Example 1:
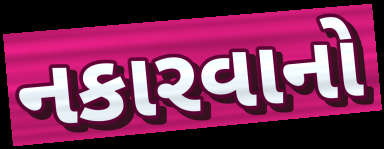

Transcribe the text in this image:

નકારવાનો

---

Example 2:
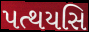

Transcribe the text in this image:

પત્થયસિ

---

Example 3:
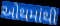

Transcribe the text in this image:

ઓથમાંથી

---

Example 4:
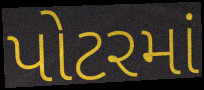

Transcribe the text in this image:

પોટરમાં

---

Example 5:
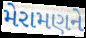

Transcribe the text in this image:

મેરામણને